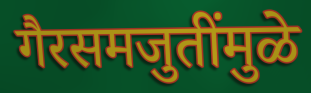
गैरसमजुतींमुळे